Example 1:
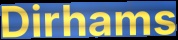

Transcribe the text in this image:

Dirhams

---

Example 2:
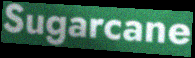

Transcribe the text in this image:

Sugarcane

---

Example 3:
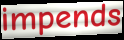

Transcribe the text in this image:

impends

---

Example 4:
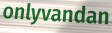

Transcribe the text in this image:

onlyvandan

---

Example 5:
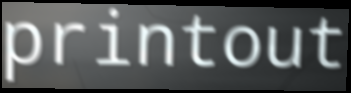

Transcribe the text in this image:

printout